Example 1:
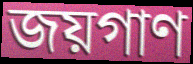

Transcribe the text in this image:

জয়গাণ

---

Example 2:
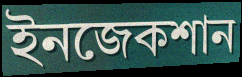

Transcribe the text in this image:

ইনজেকশান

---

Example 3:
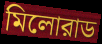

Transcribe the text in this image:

মিলোরাড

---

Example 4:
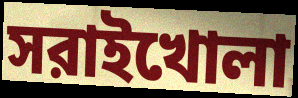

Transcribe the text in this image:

সরাইখোলা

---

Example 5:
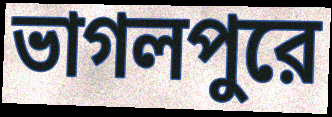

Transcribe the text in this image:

ভাগলপুরে